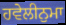
ਹਵੇਲੀਨੁਮਾ